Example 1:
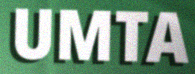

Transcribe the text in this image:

UMTA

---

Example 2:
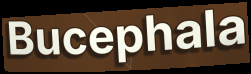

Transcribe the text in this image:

Bucephala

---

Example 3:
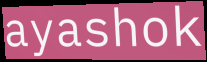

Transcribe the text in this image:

ayashok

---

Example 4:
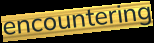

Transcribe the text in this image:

encountering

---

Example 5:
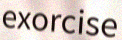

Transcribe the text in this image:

exorcise